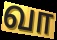
வா